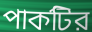
পার্কটির